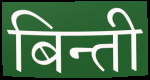
बिन्ती